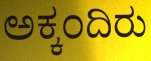
ಅಕ್ಕಂದಿರು